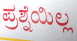
ಪ್ರಶ್ನೆಯಿಲ್ಲ